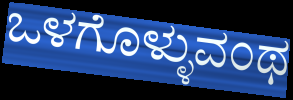
ಒಳಗೊಳ್ಳುವಂಥ